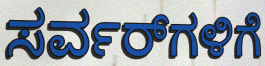
ಸರ್ವರ್‌ಗಳಿಗೆ